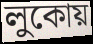
লুকোয়